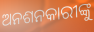
ଅନଶନକାରୀଙ୍କୁ